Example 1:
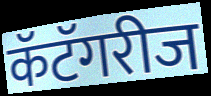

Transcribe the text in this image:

कॅटॅगरीज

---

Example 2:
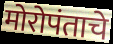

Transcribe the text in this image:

मोरोपंताचे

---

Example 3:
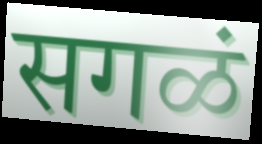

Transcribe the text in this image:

सगळं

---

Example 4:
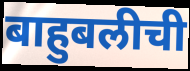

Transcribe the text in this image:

बाहुबलीची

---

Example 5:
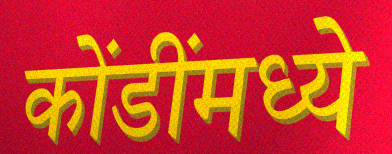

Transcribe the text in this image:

कोंडींमध्ये